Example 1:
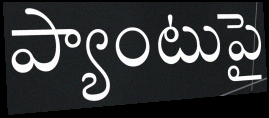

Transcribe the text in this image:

ప్యాంటుపై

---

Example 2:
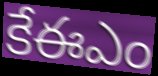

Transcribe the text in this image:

కేఈఎం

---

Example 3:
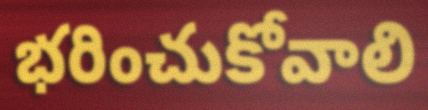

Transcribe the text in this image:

భరించుకోవాలి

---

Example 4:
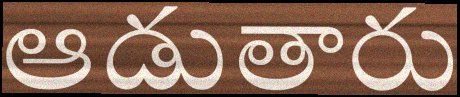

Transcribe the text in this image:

ఆడుతారు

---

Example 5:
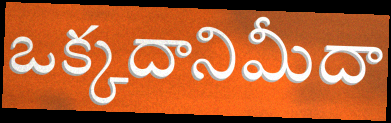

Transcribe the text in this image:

ఒక్కదానిమీదా